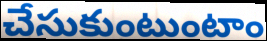
చేసుకుంటుంటాం